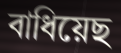
বাধিয়েছ